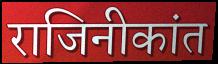
राजिनीकांत